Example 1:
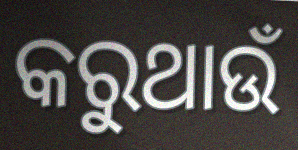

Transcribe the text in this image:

କରୁଥାଉଁ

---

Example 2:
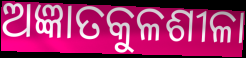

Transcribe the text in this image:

ଅଜ୍ଞାତକୁଳଶୀଳା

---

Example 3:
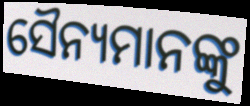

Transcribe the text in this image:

ସୈନ୍ୟମାନଙ୍କୁ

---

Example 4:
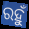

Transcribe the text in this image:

ରହୁଁ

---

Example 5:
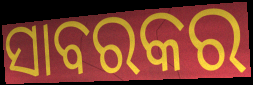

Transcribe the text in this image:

ସାବରକର